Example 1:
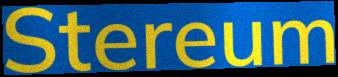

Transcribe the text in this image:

Stereum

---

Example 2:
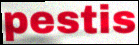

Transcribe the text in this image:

pestis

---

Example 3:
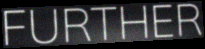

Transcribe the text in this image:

FURTHER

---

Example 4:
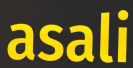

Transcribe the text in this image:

asali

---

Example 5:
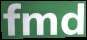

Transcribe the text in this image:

fmd